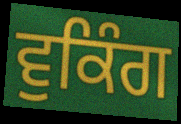
ਵੁਕਿੰਗ